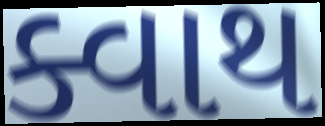
ક્વાથ